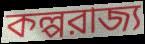
কল্পরাজ্য